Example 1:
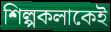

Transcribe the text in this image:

শিল্পকলাকেই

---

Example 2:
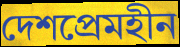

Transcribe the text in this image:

দেশপ্রেমহীন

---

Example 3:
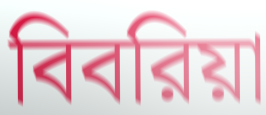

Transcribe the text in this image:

বিবরিয়া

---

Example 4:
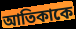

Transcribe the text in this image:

আতিকাকে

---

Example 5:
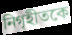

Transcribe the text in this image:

নিগৃহীতকে